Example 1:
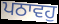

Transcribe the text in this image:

ਪਠਾਵਹੁ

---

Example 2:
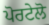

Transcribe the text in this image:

ਪੋਰਟੇਲੋ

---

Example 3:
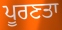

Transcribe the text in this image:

ਪੂਰਣਤਾ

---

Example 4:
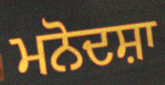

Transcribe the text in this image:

ਮਨੋਦਸ਼ਾ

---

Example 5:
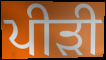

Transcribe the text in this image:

ਪੀੜੀ